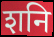
शनि